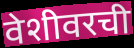
वेशीवरची